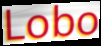
Lobo